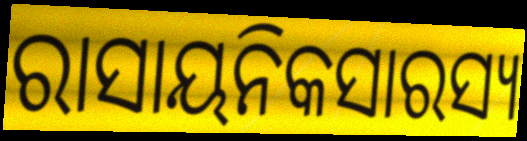
ରାସାୟନିକସାରସ୍ୟ